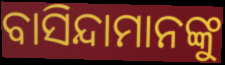
ବାସିନ୍ଦାମାନଙ୍କୁ